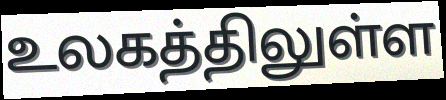
உலகத்திலுள்ள